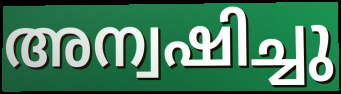
അന്വഷിച്ചു